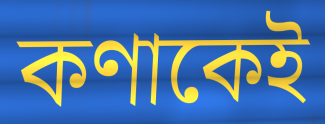
কণাকেই